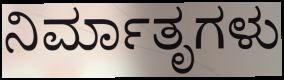
ನಿರ್ಮಾತೃಗಳು